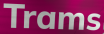
Trams